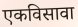
एकविसावा